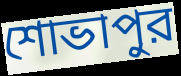
শোভাপুর